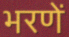
भरणें